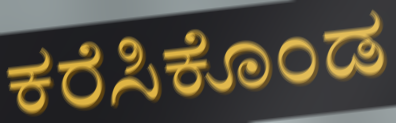
ಕರೆಸಿಕೊಂಡ